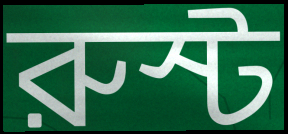
রুস্ট